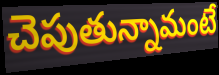
చెపుతున్నామంటే